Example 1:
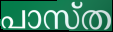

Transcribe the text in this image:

പാസ്ത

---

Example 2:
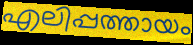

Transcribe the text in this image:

എലിപ്പത്തായം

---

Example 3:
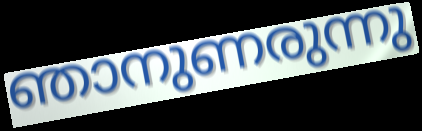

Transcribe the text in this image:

ഞാനുണരുന്നു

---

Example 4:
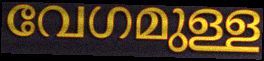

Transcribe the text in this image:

വേഗമുള്ള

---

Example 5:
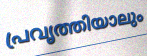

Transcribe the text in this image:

പ്രവൃത്തിയാലും